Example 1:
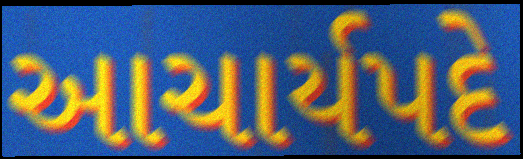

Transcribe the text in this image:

આચાર્યપદે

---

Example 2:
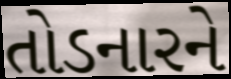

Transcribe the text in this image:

તોડનારને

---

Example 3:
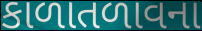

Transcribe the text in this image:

કાળાતળાવના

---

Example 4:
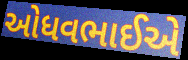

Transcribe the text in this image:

ઓધવભાઈએ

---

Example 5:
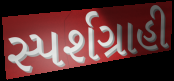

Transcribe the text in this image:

સ્પર્શગ્રાહી